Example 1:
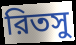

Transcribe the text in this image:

রিতসু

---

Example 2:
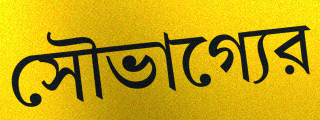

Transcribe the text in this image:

সৌভাগ্যের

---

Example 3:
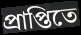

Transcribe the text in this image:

প্রাপ্তিতে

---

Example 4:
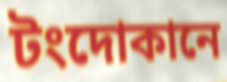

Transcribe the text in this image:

টংদোকানে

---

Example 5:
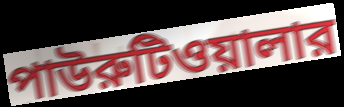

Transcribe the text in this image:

পাউরুটিওয়ালার